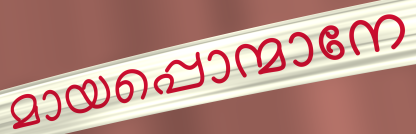
മായപ്പൊന്മാനേ